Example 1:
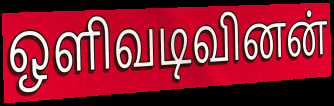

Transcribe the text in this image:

ஒளிவடிவினன்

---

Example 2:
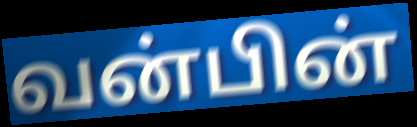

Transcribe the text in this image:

வன்பின்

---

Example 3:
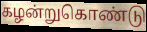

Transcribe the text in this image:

கழன்றுகொண்டு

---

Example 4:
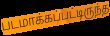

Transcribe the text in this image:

படமாக்கப்பட்டிருந்த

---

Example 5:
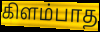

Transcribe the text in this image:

கிளம்பாத